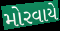
મોરવાયે